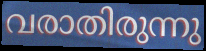
വരാതിരുന്നു